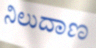
ನಿಲುದಾಣ